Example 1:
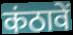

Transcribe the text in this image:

कंठावें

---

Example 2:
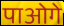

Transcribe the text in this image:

पाओगे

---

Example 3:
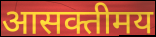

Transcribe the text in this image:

आसक्तीमय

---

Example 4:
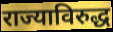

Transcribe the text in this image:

राज्याविरुद्ध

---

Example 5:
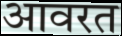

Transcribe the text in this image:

आवरत